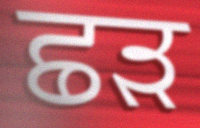
ਛੜ